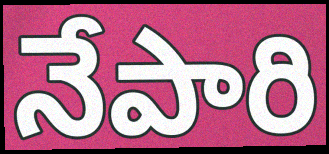
నేపారి